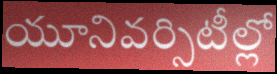
యూనివర్సిటీల్లో